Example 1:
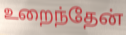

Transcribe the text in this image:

உறைந்தேன்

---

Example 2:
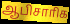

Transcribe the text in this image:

ஆபிசாரிக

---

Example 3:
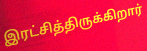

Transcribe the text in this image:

இரட்சித்திருக்கிறார்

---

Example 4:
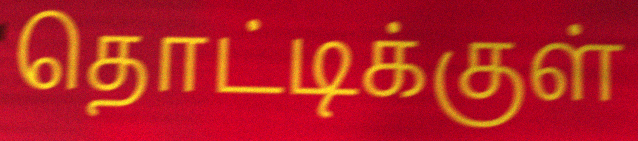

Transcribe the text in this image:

தொட்டிக்குள்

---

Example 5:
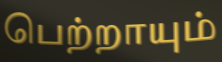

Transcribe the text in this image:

பெற்றாயும்